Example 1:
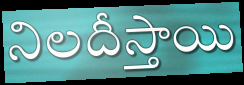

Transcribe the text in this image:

నిలదీస్తాయి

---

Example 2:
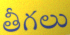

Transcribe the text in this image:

తీగలు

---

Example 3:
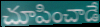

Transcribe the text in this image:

చూపించాడే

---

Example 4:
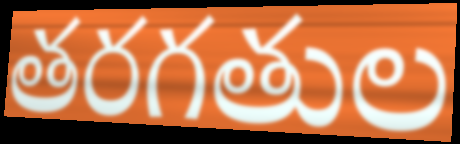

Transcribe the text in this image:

తరగతుల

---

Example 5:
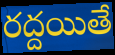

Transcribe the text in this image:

రద్దయితే